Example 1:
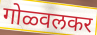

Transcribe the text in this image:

गोळ्वलकर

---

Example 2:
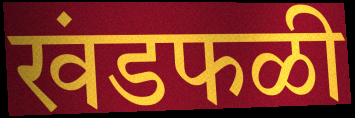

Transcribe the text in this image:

खंडफळी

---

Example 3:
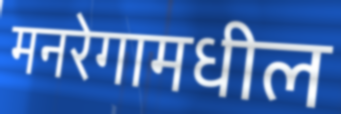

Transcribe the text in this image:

मनरेगामधील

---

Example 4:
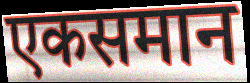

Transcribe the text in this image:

एकसमान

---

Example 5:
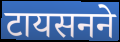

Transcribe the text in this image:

टायसनने